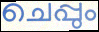
ചെപ്പും